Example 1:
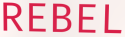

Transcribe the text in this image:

REBEL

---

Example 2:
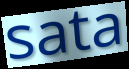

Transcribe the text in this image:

sata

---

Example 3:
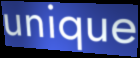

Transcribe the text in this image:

unique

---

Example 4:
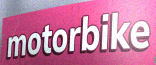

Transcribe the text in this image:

motorbike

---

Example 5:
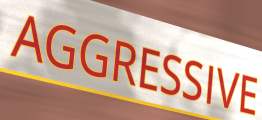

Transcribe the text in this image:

AGGRESSIVE